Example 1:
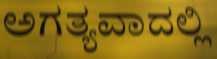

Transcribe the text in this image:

ಅಗತ್ಯವಾದಲ್ಲಿ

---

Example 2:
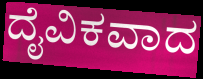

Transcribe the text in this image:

ದೈವಿಕವಾದ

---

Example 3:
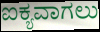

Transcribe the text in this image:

ಐಕ್ಯವಾಗಲು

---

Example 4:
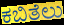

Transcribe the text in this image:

ಕಬಿತೆಲು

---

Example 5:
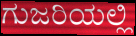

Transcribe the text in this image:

ಗುಜರಿಯಲ್ಲಿ